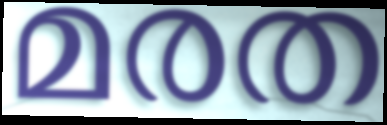
മരത